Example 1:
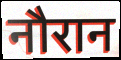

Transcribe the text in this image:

नौरान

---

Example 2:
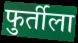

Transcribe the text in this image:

फुर्तीला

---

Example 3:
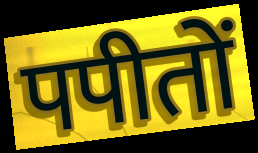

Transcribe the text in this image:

पपीतों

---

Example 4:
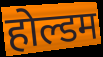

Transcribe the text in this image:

होल्डम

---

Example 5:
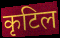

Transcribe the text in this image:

कृटिल